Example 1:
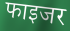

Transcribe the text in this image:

फाइजर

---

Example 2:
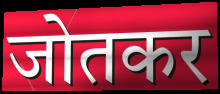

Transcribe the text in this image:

जोतकर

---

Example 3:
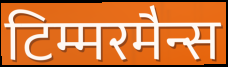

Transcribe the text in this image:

टिम्मरमैन्स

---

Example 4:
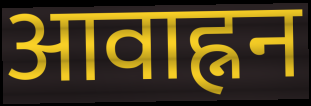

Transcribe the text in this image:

आवाह्नन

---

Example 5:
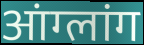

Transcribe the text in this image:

आंग्लांग